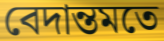
বেদান্তমতে